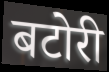
बटोरी